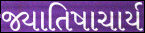
જ્યાતિષાચાર્ય